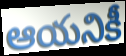
ఆయనికీ